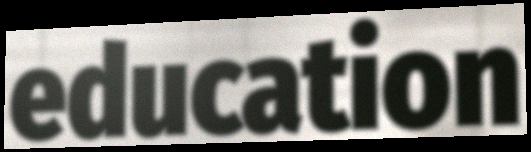
education